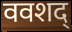
ववशद्